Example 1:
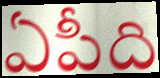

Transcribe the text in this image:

ఏపీది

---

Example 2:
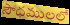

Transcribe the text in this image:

సౌధములలో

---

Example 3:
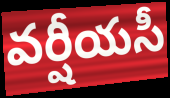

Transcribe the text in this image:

వర్షీయసీ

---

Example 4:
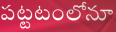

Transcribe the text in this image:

పట్టటంలోనూ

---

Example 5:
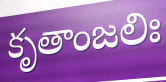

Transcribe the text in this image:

కృతాంజలిః